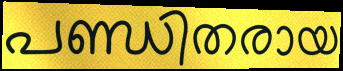
പണ്ഡിതരായ